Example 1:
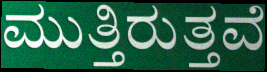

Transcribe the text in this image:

ಮುತ್ತಿರುತ್ತವೆ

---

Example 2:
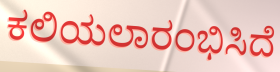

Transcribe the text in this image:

ಕಲಿಯಲಾರಂಭಿಸಿದೆ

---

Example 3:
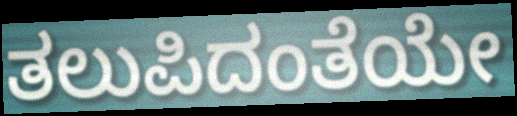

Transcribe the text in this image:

ತಲುಪಿದಂತೆಯೇ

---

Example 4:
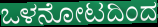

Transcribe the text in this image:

ಒಳನೋಟದಿಂದ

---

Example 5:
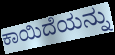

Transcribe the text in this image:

ಕಾಯಿದೆಯನ್ನು